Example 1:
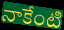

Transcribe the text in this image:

నాకేంటి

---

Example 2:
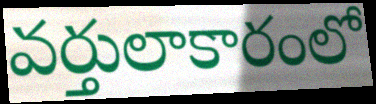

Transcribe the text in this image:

వర్తులాకారంలో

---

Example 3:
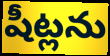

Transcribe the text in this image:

షీట్లను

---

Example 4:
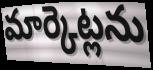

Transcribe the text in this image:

మార్కెట్లను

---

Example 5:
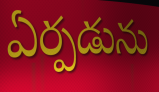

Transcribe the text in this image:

ఏర్పడును